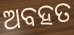
ଅବହତ